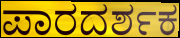
ಪಾರದರ್ಶಕ